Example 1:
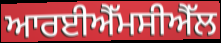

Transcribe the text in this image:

ਆਰਈਐੱਮਸੀਐੱਲ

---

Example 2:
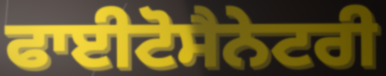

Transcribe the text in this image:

ਫਾਈਟੋਸੈਨੇਟਰੀ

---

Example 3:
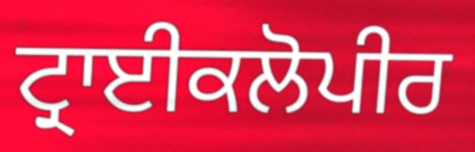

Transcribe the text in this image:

ਟ੍ਰਾਈਕਲੋਪੀਰ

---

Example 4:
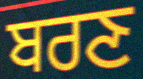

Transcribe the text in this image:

ਬਰਣ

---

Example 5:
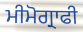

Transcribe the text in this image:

ਮੀਮੋਗ੍ਰਾਫੀ